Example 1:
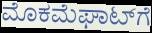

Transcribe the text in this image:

ಮೊಕಮೆಘಾಟ್‌ಗೆ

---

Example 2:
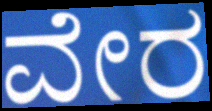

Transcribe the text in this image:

ವೇರ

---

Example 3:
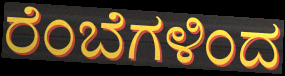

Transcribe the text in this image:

ರೆಂಬೆಗಳಿಂದ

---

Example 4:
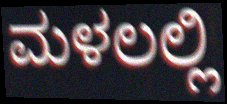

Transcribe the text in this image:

ಮಳಲಲ್ಲಿ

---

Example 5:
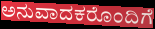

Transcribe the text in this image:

ಅನುವಾದಕರೊಂದಿಗೆ